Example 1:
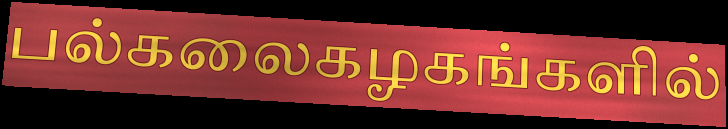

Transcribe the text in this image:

பல்கலைகழகங்களில்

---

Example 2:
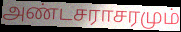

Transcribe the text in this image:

அண்டசராசரமும்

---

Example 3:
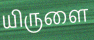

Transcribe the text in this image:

யிருளை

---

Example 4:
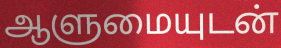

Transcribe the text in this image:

ஆளுமையுடன்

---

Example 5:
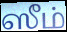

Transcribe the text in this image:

ஸீம்